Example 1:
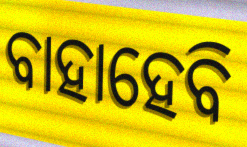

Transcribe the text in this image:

ବାହାହେବି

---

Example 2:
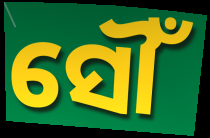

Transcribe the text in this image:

ସୌଁ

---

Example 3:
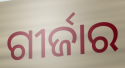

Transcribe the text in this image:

ଗୀର୍ଜାର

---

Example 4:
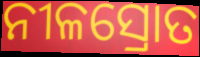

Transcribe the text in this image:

ନୀଳସ୍ରୋତ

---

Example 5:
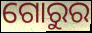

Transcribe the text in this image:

ଗୋରୁର